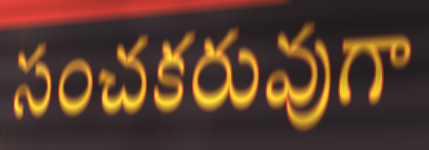
సంచకరువుగా